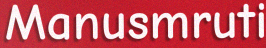
Manusmruti